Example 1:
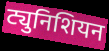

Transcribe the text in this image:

ट्युनिशियन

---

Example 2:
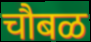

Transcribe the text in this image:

चौबळ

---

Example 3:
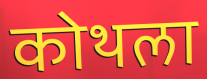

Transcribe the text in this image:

कोथला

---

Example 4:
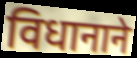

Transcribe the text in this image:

विधानाने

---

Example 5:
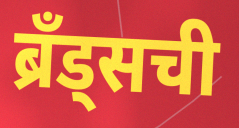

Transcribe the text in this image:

ब्रॅंड्सची